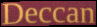
Deccan